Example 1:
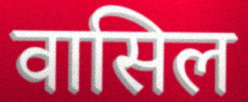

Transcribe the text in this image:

वासिल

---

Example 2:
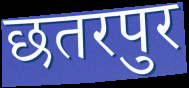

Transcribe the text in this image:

छतरपुर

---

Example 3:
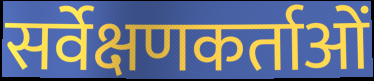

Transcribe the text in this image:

सर्वेक्षणकर्ताओं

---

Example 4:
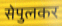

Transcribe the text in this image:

सेपुलकर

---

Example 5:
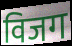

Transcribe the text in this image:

विजग